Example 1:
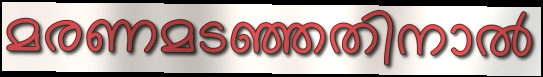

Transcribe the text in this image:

മരണമടഞ്ഞതിനാൽ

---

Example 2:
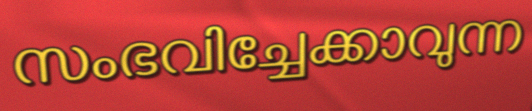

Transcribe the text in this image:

സംഭവിച്ചേക്കാവുന്ന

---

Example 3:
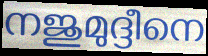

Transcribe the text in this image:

നജുമുദ്ദീനെ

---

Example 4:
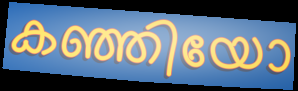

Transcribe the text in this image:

കഞ്ഞിയോ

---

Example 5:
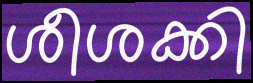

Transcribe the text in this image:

ശീശക്കി